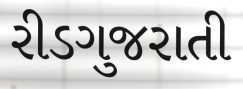
રીડગુજરાતી